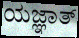
ಯಜ್ಞಾತ್